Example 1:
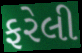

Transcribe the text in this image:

ફરેલી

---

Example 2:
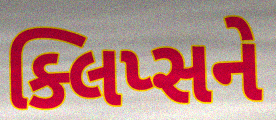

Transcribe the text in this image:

ક્લિપ્સને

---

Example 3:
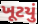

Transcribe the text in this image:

ખૂટયું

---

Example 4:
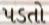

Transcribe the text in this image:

પડતો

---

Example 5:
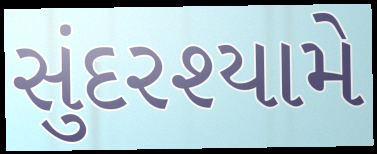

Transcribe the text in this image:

સુંદરશ્યામે